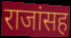
राजांसह